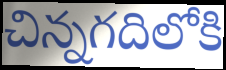
చిన్నగదిలోకి